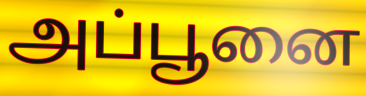
அப்பூனை